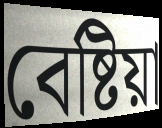
বেষ্টিয়া